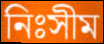
নিঃসীম